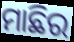
ମାଛିର